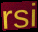
rsi